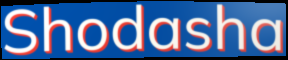
Shodasha